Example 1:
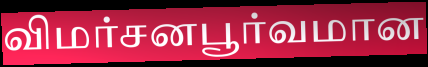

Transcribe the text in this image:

விமர்சனபூர்வமான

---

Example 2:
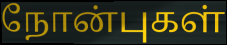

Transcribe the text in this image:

நோன்புகள்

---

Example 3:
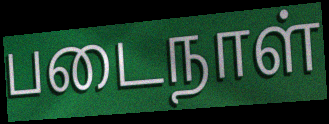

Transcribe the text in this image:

படைநாள்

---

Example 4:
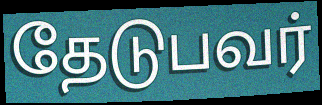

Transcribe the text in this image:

தேடுபவர்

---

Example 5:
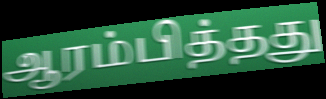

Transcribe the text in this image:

ஆரம்பித்தது